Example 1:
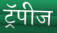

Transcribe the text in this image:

ट्रॅपीज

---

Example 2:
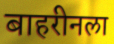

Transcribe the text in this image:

बाहरीनला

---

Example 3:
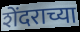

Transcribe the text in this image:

शेंदराच्या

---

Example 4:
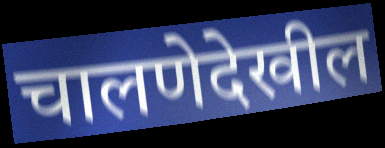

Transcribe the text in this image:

चालणेदेखील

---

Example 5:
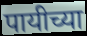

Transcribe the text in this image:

पायीच्या